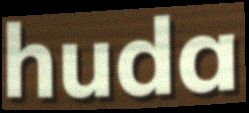
huda